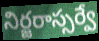
నిర్జరాస్సర్వే